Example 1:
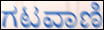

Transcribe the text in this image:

ಗಟವಾಣಿ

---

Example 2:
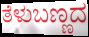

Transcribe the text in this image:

ತೆಳುಬಣ್ಣದ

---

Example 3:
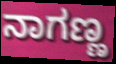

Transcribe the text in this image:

ನಾಗಣ್ಣ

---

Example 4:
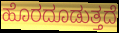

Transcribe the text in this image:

ಹೊರದೂಡುತ್ತದೆ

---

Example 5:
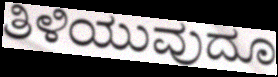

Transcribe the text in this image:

ತಿಳಿಯುವುದೂ